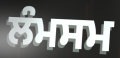
ਲੰਮਸਮ